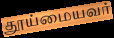
தூய்மையவர்